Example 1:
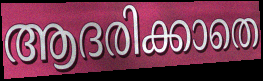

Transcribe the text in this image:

ആദരിക്കാതെ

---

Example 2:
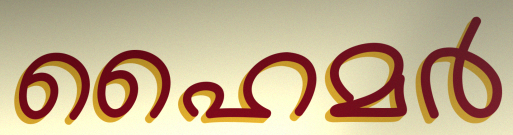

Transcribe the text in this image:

ഹൈമർ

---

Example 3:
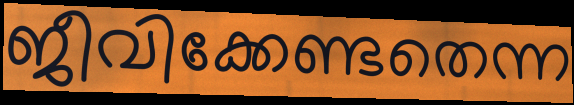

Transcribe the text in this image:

ജീവിക്കേണ്ടതെന്ന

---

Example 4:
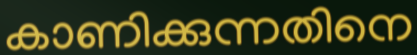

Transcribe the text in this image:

കാണിക്കുന്നതിനെ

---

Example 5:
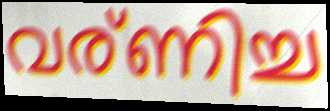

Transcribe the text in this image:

വര്ണിച്ച